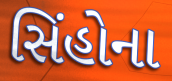
સિંહોના